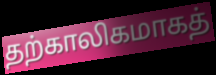
தற்காலிகமாகத்